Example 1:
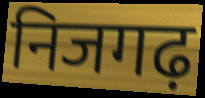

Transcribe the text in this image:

निजगढ़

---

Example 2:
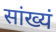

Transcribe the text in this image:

सांख्यं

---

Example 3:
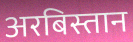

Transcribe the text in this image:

अरबिस्तान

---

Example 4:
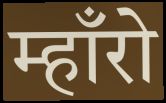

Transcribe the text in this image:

म्हाँरो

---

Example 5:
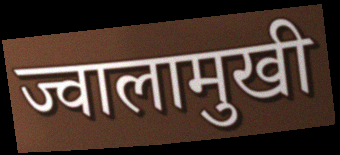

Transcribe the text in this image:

ज्वालामुखी